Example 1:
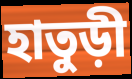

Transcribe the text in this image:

হাতুড়ী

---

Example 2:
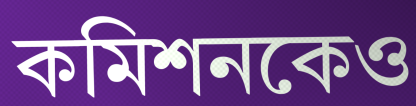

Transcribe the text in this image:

কমিশনকেও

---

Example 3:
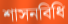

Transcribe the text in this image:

শাসনবিধি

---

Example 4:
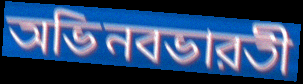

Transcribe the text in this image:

অভিনবভারতী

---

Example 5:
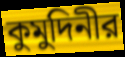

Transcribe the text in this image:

কুমুদিনীর